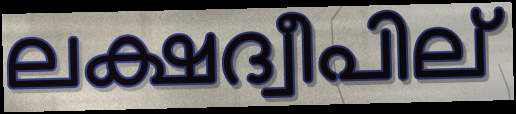
ലക്ഷദ്വീപില്